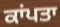
ਕਾਂਪਤਾ